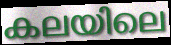
കലയിലെ